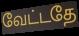
வேட்டதே